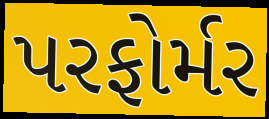
પરફોર્મર